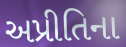
અપ્રીતિના